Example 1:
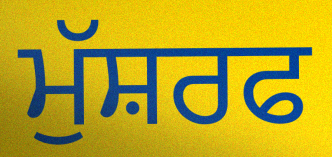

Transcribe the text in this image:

ਮੁੱਸ਼ਰਫ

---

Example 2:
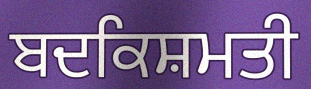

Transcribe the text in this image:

ਬਦਕਿਸ਼ਮਤੀ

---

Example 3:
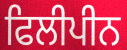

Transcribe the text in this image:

ਫਿਲੀਪੀਨ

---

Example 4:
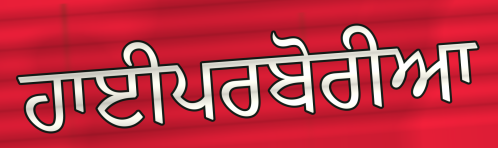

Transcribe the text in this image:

ਹਾਈਪਰਬੋਰੀਆ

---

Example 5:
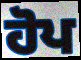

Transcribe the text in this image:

ਹੋਪ